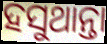
ହସୁଥାନ୍ତା